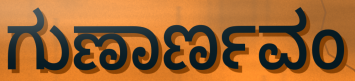
ಗುಣಾರ್ಣವಂ